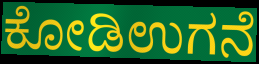
ಕೋಡಿಉಗನೆ